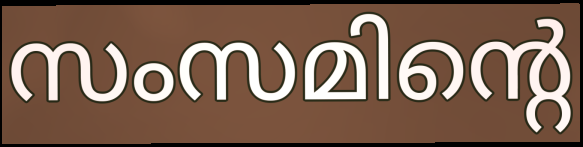
സംസമിന്റെ